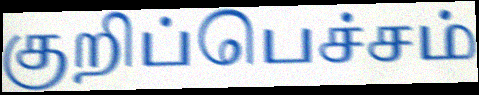
குறிப்பெச்சம்